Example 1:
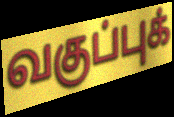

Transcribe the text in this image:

வகுப்புக்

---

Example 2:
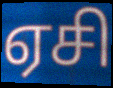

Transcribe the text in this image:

ஏசி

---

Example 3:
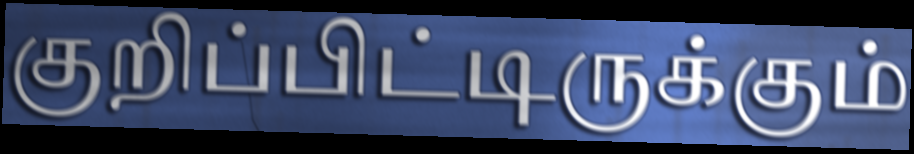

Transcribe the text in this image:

குறிப்பிட்டிருக்கும்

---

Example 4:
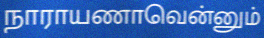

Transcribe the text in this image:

நாராயணாவென்னும்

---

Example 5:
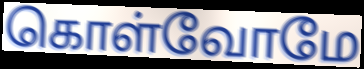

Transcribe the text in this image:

கொள்வோமே